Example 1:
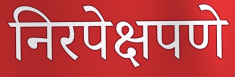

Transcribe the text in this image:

निरपेक्षपणे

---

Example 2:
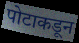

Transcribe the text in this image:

पोटाकडून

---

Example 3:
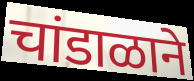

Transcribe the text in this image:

चांडाळाने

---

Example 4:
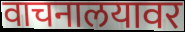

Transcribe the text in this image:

वाचनालयावर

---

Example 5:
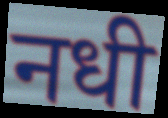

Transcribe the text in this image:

नधी